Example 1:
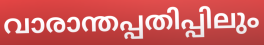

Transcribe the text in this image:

വാരാന്തപ്പതിപ്പിലും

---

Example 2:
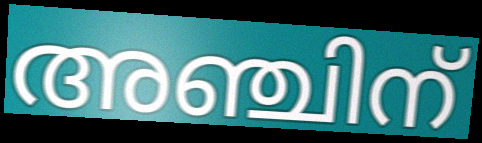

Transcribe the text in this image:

അഞ്ചിന്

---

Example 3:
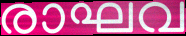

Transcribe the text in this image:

രാഘവ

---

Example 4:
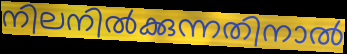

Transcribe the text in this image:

നിലനിൽക്കുന്നതിനാൽ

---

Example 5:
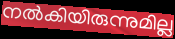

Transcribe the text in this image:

നൽകിയിരുന്നുമില്ല